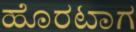
ಹೊರಟಾಗ